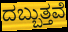
ದಬ್ಬುತ್ತವೆ